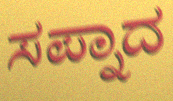
ಸಪ್ನಾದ